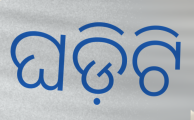
ଘଡ଼ିଟି